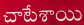
చాటేశాయి